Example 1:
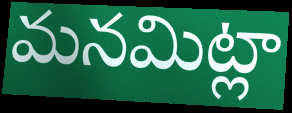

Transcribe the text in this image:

మనమిట్లా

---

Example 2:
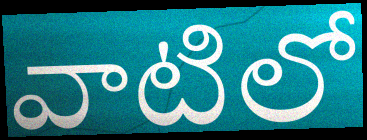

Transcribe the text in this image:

వాటిలో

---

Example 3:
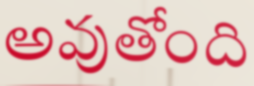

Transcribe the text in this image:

అవుతోంది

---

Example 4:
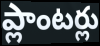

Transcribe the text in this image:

ప్లాంటర్లు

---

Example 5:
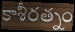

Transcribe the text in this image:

కాశీరత్నం